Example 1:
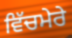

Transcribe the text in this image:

ਵਿੱਚਮੇਰੇ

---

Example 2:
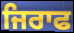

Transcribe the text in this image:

ਜਿਰਾਫ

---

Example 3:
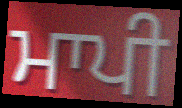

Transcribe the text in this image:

ਮਾਪੀ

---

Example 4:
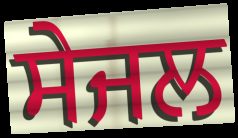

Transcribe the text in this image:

ਸੇਜਲ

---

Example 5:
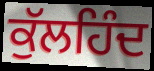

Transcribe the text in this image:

ਕੁੱਲਹਿੰਦ